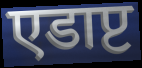
एडाप्ट